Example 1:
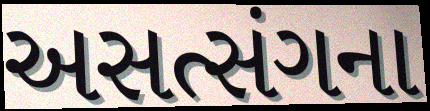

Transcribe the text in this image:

અસત્સંગના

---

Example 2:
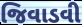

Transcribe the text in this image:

જિવાડવી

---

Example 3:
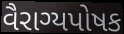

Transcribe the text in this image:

વૈરાગ્યપોષક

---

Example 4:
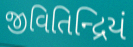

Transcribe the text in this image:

જીવિતિન્દ્રિયં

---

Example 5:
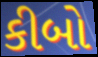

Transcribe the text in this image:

કીબો